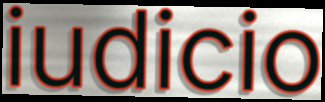
iudicio